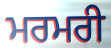
ਮਰਮਰੀ